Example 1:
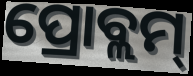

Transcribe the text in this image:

ପ୍ରୋବ୍ଲମ୍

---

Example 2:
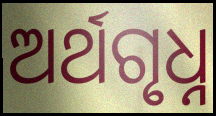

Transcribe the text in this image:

ଅର୍ଥଗୃଧ୍ନ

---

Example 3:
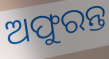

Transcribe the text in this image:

ଅଫୁରନ୍ତ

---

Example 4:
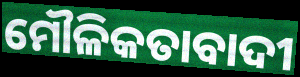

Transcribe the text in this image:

ମୌଳିକତାବାଦୀ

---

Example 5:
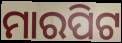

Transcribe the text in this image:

ମାରପିଟ